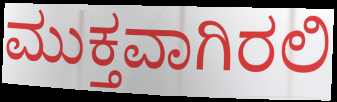
ಮುಕ್ತವಾಗಿರಲಿ